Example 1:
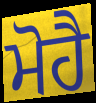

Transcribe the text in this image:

ਮੋਹੈ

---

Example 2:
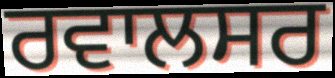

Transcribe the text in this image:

ਰਵਾਲਸਰ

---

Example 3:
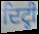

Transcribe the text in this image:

ਦਿਟ੍ਠੀ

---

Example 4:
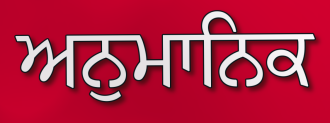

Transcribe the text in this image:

ਅਨੁਮਾਨਿਕ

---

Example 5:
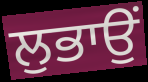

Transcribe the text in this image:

ਲੁਭਾਉਂ